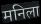
मनिला